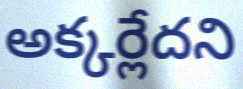
అక్కర్లేదని